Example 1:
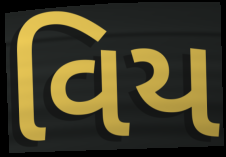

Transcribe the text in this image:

વિય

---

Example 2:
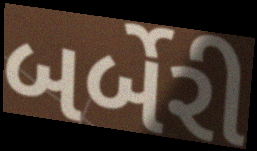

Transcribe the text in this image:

બર્બેરી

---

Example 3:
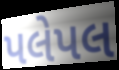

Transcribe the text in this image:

પલેપલ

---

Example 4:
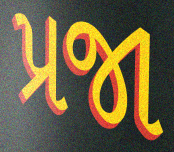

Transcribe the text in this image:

પ્રજા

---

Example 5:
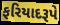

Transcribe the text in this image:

ફરિયાદરૂપે